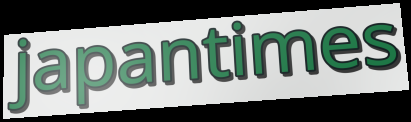
japantimes